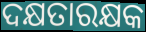
ଦକ୍ଷତାରକ୍ଷକ